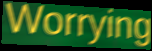
Worrying